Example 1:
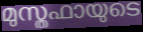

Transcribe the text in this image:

മുസ്തഫായുടെ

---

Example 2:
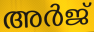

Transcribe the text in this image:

അർജ്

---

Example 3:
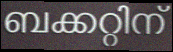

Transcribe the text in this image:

ബക്കറ്റിന്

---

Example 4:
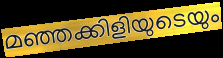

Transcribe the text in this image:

മഞ്ഞക്കിളിയുടെയും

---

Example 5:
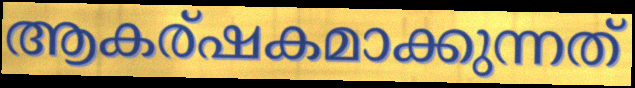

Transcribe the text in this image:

ആകര്ഷകമാക്കുന്നത്